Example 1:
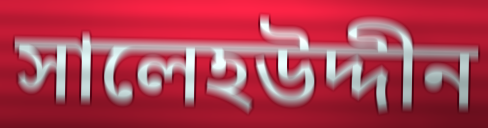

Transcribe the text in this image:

সালেহউদ্দীন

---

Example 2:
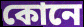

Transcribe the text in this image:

কোনে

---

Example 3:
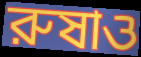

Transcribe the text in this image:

রুষাও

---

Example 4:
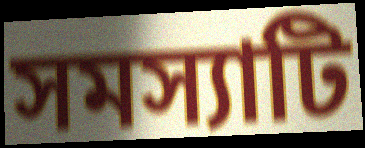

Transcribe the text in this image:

সমস্যাটি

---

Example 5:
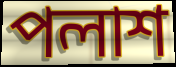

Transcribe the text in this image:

পলাশ